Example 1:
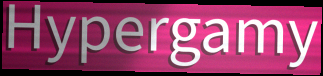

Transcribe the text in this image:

Hypergamy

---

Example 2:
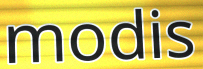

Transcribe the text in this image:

modis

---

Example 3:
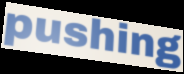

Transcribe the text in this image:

pushing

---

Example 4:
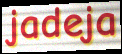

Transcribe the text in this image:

jadeja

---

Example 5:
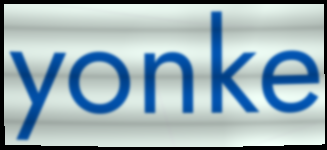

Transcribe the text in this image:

yonke